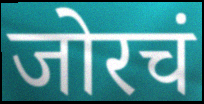
जोरचं